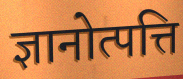
ज्ञानोत्पत्ति